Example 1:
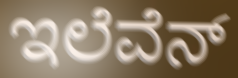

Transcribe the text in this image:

ಇಲೆವೆನ್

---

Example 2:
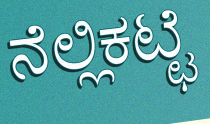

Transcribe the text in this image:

ನೆಲ್ಲಿಕಟ್ಟೆ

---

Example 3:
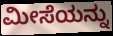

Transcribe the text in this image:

ಮೀಸೆಯನ್ನು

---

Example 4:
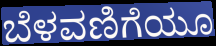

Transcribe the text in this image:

ಬೆಳವಣಿಗೆಯೂ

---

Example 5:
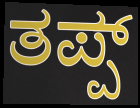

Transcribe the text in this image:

ತಪ್ಪ್